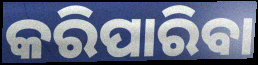
କରିପାରିବା